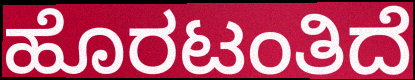
ಹೊರಟಂತಿದೆ